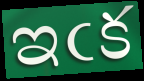
ఇఁక